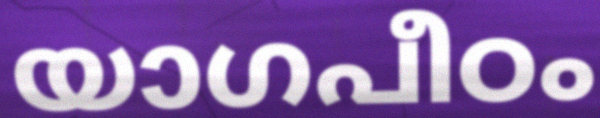
യാഗപീഠം